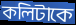
কলিটাকে